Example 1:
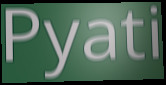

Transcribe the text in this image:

Pyati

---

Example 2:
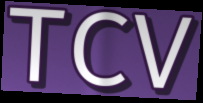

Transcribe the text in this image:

TCV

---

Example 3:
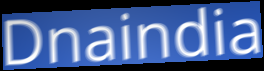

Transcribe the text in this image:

Dnaindia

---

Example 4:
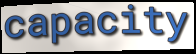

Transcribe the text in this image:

capacity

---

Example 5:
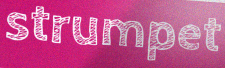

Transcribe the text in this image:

strumpet